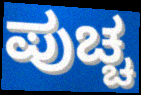
ಪುಚ್ಚ